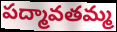
పద్మావతమ్మ